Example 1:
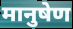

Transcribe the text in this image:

मानुषेण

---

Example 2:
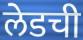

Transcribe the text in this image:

लेडची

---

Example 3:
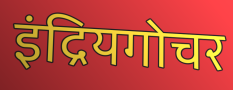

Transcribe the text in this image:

इंद्रियगोचर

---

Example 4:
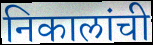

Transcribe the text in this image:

निकालांची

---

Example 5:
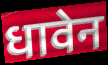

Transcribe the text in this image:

धावेन